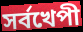
সর্বখেপী